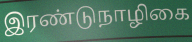
இரண்டுநாழிகை